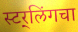
स्टर्लिंगचा